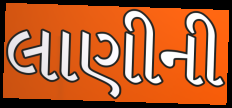
લાણીની